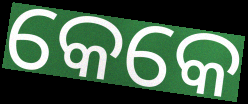
କେକେ